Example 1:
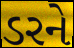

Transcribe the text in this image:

ડરને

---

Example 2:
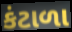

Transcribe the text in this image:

કંટાળા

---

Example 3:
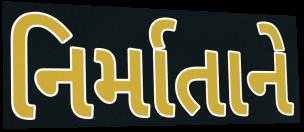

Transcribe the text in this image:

નિર્માતાને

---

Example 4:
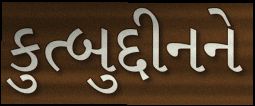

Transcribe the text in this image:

કુત્બુદ્દીનને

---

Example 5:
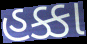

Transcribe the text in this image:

હક્કા